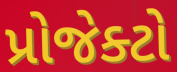
પ્રોજેક્ટો